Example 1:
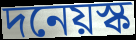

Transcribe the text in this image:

দনেয়স্ক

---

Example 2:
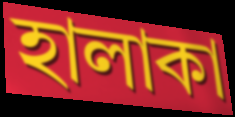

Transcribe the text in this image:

হালাকা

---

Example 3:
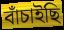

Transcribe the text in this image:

বাঁচাইছি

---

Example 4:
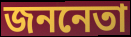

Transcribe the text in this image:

জননেতা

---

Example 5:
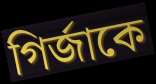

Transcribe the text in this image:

গির্জাকে